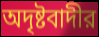
অদৃষ্টবাদীর